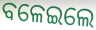
ବଳେଇଲେ